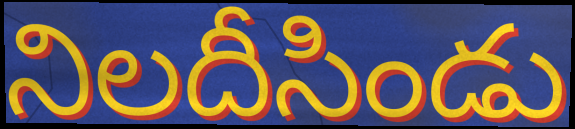
నిలదీసిండు